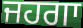
ਜਹਗਾ